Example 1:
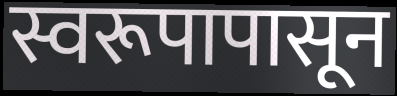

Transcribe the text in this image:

स्वरूपापासून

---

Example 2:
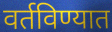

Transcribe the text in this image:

वर्तविण्यात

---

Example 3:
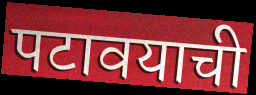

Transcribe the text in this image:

पटावयाची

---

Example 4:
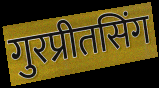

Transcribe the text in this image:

गुरप्रीतसिंग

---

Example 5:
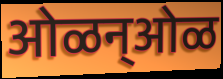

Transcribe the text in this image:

ओळन्ओळ